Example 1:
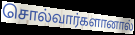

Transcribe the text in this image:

சொல்வார்களானால்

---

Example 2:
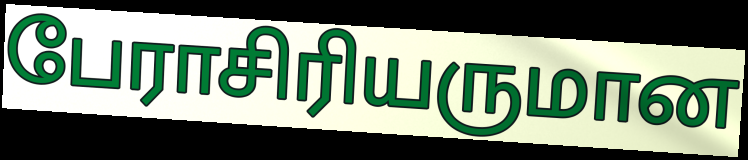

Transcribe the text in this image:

பேராசிரியருமான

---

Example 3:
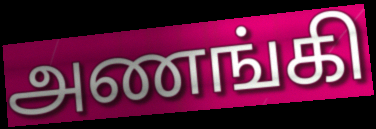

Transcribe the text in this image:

அணங்கி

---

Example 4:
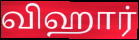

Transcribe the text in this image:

விஹார்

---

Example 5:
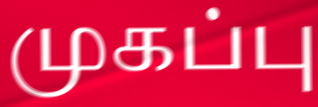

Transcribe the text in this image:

முகப்பு